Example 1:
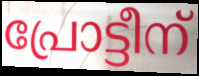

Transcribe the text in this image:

പ്രോട്ടീന്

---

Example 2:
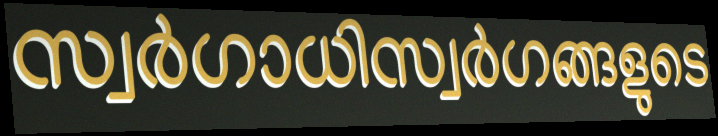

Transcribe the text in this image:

സ്വർഗാധിസ്വർഗങ്ങളുടെ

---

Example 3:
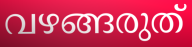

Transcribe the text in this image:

വഴങ്ങരുത്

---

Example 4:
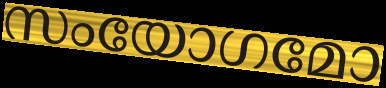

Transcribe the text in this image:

സംയോഗമോ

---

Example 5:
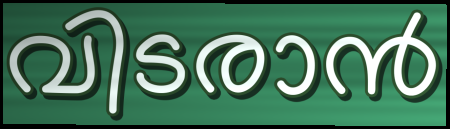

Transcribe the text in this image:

വിടരാൻ